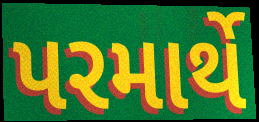
પરમાર્થે